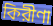
কিরীণা